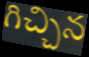
గిచ్చిన